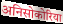
अनिसोकोरिया